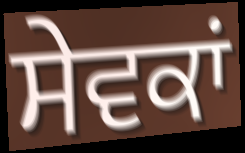
ਸੇਵਕਾਂ